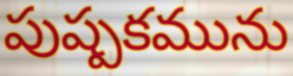
పుష్పకమును